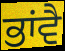
ਭਾਂਵੈ